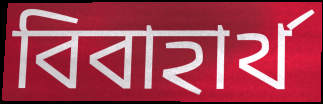
বিবাহার্থ